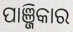
ପାଞ୍ଜିକାର